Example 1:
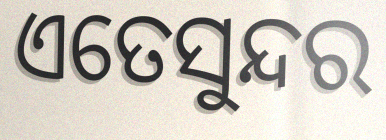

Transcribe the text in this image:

ଏତେସୁନ୍ଦର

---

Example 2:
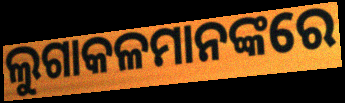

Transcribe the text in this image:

ଲୁଗାକଳମାନଙ୍କରେ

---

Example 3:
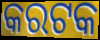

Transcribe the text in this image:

କରଟକ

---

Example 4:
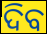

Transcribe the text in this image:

ଦିବ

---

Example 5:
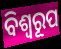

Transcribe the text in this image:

ବିଶ୍ବରୂପ